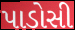
પાડોસી